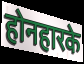
होनहारके